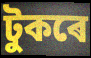
টুকৰে